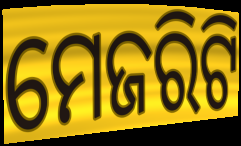
ମେଜରିଟି